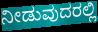
ನೀಡುವುದರಲ್ಲಿ